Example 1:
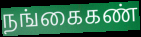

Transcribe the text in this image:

நங்கைகண்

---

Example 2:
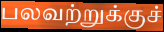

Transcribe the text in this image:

பலவற்றுக்குச்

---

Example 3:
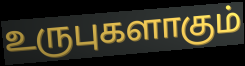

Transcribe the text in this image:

உருபுகளாகும்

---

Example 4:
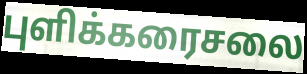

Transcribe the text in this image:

புளிக்கரைசலை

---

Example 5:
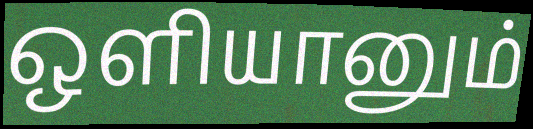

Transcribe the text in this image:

ஒளியானும்